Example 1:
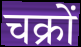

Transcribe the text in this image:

चक्रों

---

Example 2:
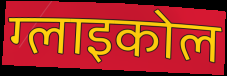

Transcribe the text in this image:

ग्लाइकोल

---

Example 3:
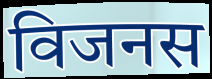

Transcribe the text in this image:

विजनस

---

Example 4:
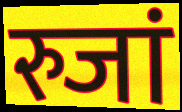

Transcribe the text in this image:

रुजां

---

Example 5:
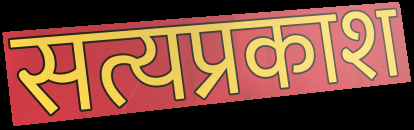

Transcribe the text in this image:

सत्यप्रकाश